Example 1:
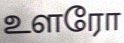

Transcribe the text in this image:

உளரோ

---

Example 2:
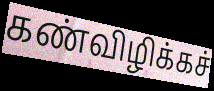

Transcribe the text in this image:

கண்விழிக்கச்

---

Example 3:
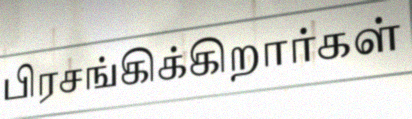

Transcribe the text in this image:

பிரசங்கிக்கிறார்கள்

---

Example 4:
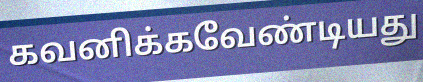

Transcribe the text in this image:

கவனிக்கவேண்டியது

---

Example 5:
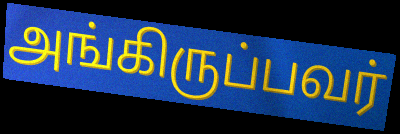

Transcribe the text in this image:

அங்கிருப்பவர்